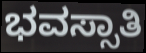
ಭವಸ್ಸಾತಿ